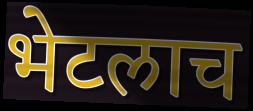
भेटलाच